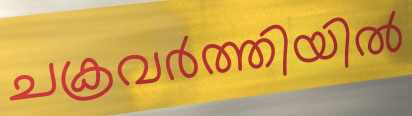
ചക്രവർത്തിയിൽ